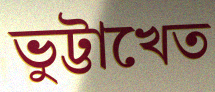
ভুট্টাখেত